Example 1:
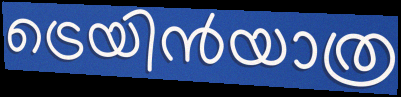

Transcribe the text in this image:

ട്രെയിൻയാത്ര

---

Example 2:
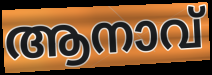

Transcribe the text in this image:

ആനാവ്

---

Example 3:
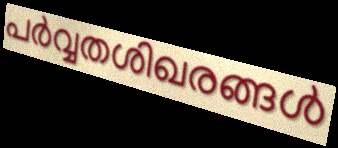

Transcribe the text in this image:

പർവ്വതശിഖരങ്ങൾ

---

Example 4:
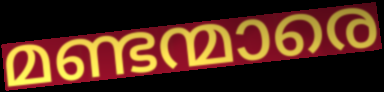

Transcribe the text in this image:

മണ്ടന്മാരെ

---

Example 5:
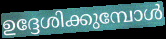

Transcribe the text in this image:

ഉദ്ദേശിക്കുമ്പോൾ